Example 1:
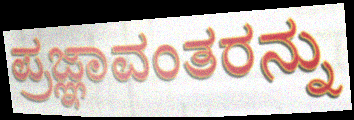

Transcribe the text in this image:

ಪ್ರಜ್ಞಾವಂತರನ್ನು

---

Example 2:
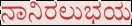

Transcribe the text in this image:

ನಾನಿರಲುಭಯ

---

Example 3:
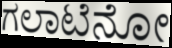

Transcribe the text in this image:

ಗಲಾಟೆನೋ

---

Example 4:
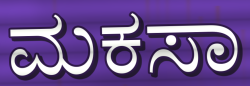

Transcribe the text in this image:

ಮಕಸಾ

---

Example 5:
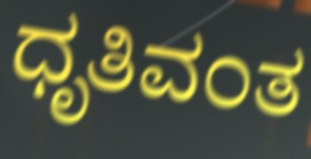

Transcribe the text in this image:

ಧೃತಿವಂತ